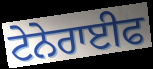
ਟੇਨੇਰਾਈਫ